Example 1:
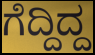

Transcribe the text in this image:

ಗೆದ್ದಿದ್ದ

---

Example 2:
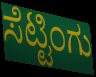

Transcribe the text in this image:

ಸೆಟ್ಟಿಂಗು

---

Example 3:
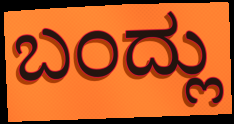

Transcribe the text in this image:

ಬಂದ್ಲು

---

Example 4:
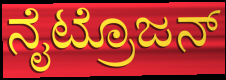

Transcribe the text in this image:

ನೈಟ್ರೊಜನ್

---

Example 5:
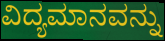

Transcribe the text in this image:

ವಿದ್ಯಮಾನವನ್ನು